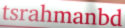
tsrahmanbd